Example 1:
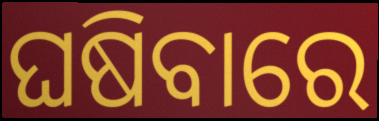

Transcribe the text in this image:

ଘଷିବାରେ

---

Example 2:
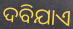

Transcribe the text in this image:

ଦବିଯାଏ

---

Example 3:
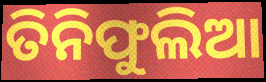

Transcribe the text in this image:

ତିନିଫୁଲିଆ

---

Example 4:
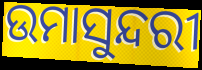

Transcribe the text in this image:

ଉମାସୁନ୍ଦରୀ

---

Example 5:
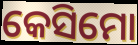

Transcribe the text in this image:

କେସିମୋ